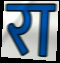
रा